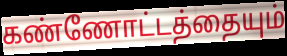
கண்ணோட்டத்தையும்